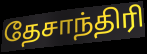
தேசாந்திரி